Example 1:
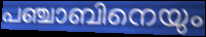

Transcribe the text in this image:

പഞ്ചാബിനെയും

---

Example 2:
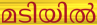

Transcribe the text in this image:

മടിയിൽ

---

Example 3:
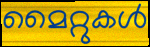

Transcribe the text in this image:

മൈറ്റുകൾ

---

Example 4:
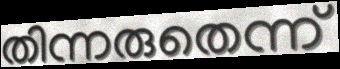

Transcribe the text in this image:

തിന്നരുതെന്ന്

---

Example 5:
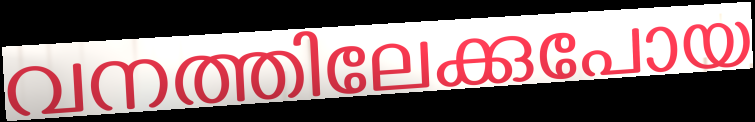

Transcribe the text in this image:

വനത്തിലേക്കുപോയ